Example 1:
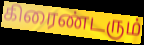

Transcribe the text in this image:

கிரைண்டரும்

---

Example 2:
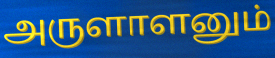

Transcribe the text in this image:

அருளாளனும்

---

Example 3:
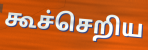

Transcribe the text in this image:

கூச்செறிய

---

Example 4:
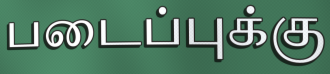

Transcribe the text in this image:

படைப்புக்கு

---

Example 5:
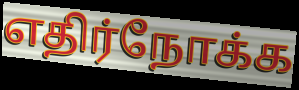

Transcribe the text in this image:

எதிர்நோக்க